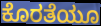
ಕೊರತೆಯೂ